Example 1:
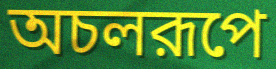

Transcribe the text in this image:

অচলরূপে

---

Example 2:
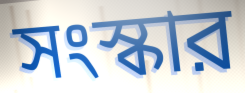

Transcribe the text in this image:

সংস্কার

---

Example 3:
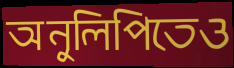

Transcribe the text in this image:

অনুলিপিতেও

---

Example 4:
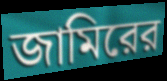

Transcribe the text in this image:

জামিরের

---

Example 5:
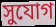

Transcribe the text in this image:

সুযোগ